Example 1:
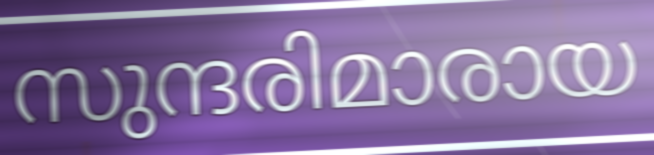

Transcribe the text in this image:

സുന്ദരിമാരായ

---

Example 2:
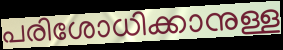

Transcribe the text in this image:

പരിശോധിക്കാനുള്ള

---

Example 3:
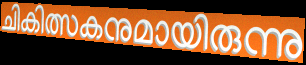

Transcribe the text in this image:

ചികിത്സകനുമായിരുന്നു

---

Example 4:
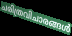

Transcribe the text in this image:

ചരിത്രവിചാരങ്ങൾ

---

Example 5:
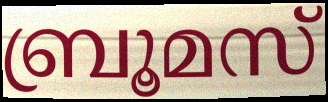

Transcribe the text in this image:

ബ്രൂമസ്